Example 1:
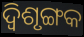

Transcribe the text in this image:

ଦ୍ବିଶୃଙ୍ଗକ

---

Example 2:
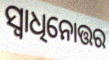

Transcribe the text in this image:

ସ୍ୱାଧିନୋତ୍ତର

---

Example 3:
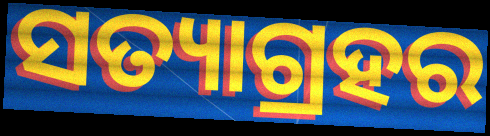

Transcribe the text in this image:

ସତ୍ୟାଗ୍ରହର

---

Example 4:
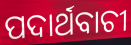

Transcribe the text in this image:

ପଦାର୍ଥବାଚୀ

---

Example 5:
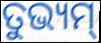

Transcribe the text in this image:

ତୁଭ୍ୟମ୍